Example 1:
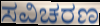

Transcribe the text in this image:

ಸವಿಚರಣ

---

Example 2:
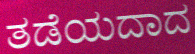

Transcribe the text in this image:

ತಡೆಯದಾದ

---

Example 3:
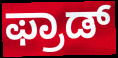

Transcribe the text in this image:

ಫ್ರಾಡ್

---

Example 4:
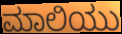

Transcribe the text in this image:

ಮಾಲಿಯು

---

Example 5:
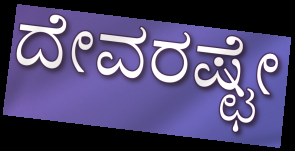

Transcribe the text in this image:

ದೇವರಷ್ಟೇ